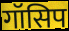
गॉसिप